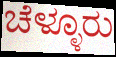
ಚೆಳ್ಳೂರು